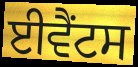
ਈਵੈਂਟਸ